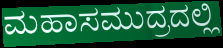
ಮಹಾಸಮುದ್ರದಲ್ಲಿ